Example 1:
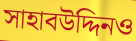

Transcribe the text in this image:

সাহাবউদ্দিনও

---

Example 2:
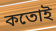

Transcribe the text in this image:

কতোই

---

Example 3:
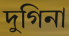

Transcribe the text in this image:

দুগিনা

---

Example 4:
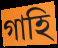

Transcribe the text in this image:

গাহি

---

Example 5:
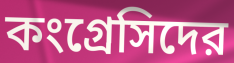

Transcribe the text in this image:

কংগ্রেসিদের